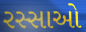
રસ્સાઓ